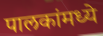
पालकांमध्ये